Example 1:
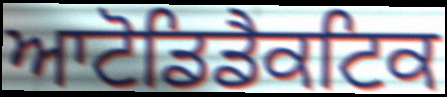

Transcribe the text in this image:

ਆਟੋਡਿਡੈਕਟਿਕ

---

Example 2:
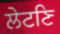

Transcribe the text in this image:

ਲੇਟਣਿ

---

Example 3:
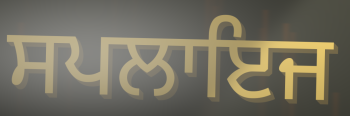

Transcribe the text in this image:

ਸਪਲਾਇਜ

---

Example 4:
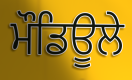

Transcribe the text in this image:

ਮੌਡਿਊਲੇ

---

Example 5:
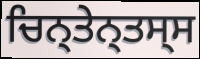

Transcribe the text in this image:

ਚਿਨ੍ਤੇਨ੍ਤਸ੍ਸ